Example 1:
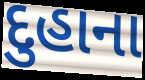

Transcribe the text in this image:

દુહાના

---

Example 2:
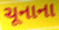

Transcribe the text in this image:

ચૂનાના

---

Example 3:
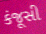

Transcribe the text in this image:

કંજૂસી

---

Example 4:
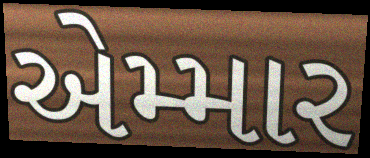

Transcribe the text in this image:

એમ્માર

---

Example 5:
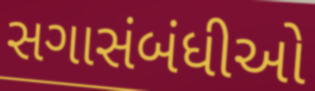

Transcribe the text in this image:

સગાસંબંધીઓ